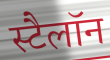
स्टैलॉन